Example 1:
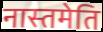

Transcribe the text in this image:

नास्तमेति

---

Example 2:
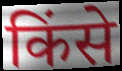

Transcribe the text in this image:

किंसे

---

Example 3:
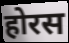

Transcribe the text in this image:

होरस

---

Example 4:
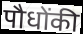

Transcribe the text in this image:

पौधोंकी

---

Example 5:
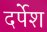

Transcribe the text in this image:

दर्पेश